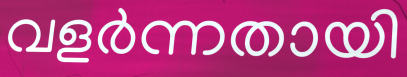
വളർന്നതായി